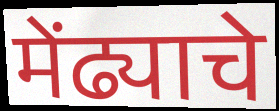
मेंढ्याचे